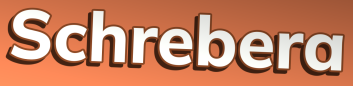
Schrebera